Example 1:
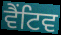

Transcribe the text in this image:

ਵੈਂਟਿਵ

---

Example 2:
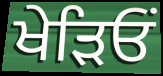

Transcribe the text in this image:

ਖੇੜਿਓਂ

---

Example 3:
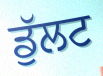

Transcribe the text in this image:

ਡੁੱਲਟ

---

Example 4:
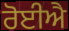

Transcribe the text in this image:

ਰੋਈਐ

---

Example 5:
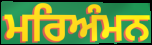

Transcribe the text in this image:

ਮਰਿਅੰਮਨ